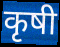
कृषी